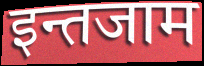
इन्तजाम